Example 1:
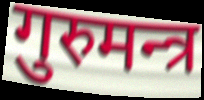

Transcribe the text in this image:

गुरुमन्त्र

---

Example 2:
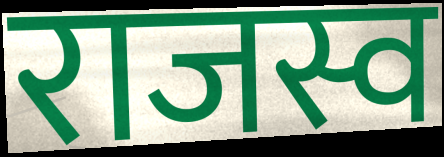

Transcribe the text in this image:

राजस्‍व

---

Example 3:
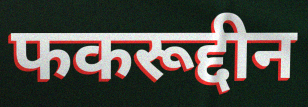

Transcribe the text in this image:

फकरूद्दीन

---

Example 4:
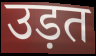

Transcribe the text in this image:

उड़त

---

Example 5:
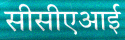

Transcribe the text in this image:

सीसीएआई